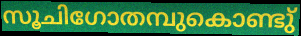
സൂചിഗോതമ്പുകൊണ്ടു്